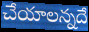
చేయాలన్నదే